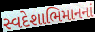
સ્વદેશાભિમાનનાં